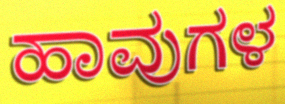
ಹಾವುಗಳ